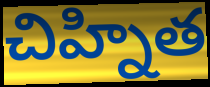
చిహ్నిత